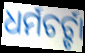
ଧର୍ମଚର୍ଚ୍ଚା